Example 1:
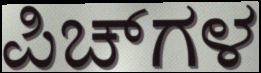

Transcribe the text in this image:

ಪಿಚ್‌ಗಳ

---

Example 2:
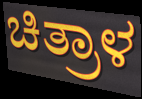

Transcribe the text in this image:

ಚಿತ್ರಾಳ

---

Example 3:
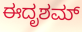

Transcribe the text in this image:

ಈದೃಶಮ್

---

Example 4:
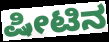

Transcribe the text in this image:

ಷೀಟಿನ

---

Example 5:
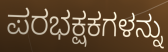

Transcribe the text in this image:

ಪರಭಕ್ಷಕಗಳನ್ನು